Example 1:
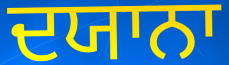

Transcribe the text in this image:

ਦਯਾਨਾ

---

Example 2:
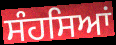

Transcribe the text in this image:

ਸੰਹਸਿਆਂ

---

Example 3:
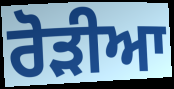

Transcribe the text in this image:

ਰੋੜੀਆ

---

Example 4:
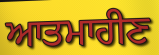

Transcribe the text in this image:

ਆਤਮਾਹੀਣ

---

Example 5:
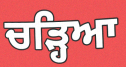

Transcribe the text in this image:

ਚਡ਼੍ਹਿਆ